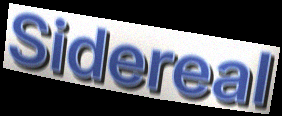
Sidereal